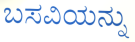
ಬಸವಿಯನ್ನು